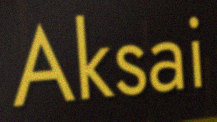
Aksai